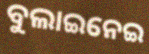
ବୁଲାଇନେଇ